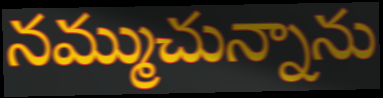
నమ్ముచున్నాను